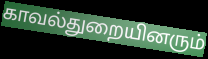
காவல்துறையினரும்